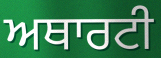
ਅਥਾਰਟੀ